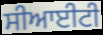
ਸੀਆਈਟੀ